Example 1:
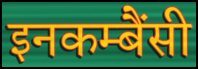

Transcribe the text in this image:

इनकम्बैंसी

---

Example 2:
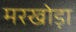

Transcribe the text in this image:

मरखोड़ा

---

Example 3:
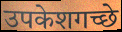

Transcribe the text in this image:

उपकेशगच्छे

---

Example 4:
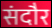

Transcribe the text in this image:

संदौर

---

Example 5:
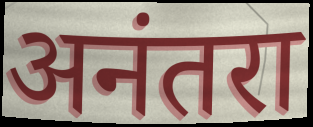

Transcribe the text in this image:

अनंतरा